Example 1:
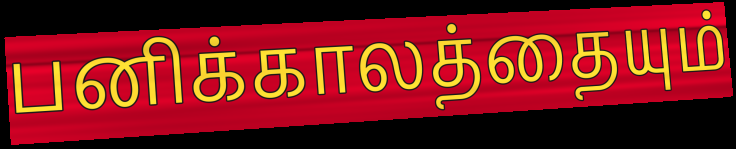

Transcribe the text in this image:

பனிக்காலத்தையும்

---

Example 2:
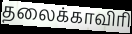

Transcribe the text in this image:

தலைக்காவிரி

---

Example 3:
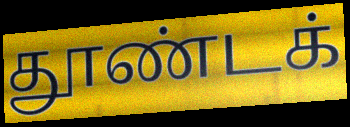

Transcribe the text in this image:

தூண்டக்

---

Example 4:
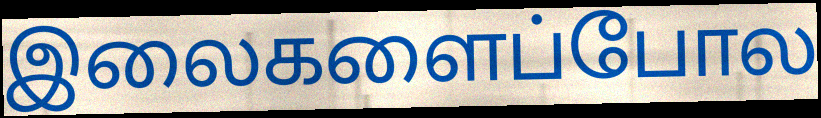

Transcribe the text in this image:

இலைகளைப்போல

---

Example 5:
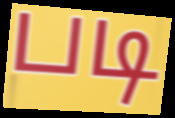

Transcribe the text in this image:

படி